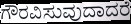
ಗೌರವಿಸುವುದಾದರೆ